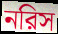
নরিস